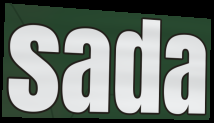
sada